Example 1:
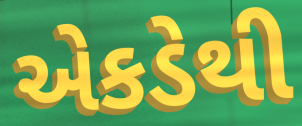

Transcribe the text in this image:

એકડેથી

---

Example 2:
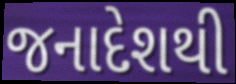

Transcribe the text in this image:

જનાદેશથી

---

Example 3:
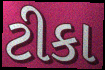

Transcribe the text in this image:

ટીકા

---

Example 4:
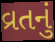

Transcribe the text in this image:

વ્રતનું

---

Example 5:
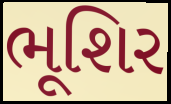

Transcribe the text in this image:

ભૂશિર